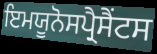
ਇਮਯੂਨੋਸਪ੍ਰੈਸੈਂਟਸ